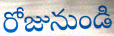
రోజునుండి